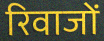
रिवाजों